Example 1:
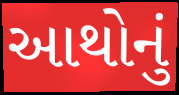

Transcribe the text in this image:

આથોનું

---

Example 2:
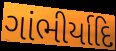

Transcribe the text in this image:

ગાંભીર્યાદિ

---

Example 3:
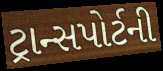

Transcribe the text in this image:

ટ્રાન્સપોર્ટની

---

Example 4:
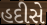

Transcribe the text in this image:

હદીસે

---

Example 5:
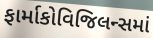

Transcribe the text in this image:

ફાર્માકોવિજિલન્સમાં